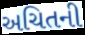
અચિતની